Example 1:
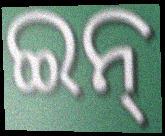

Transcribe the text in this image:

ଇନ୍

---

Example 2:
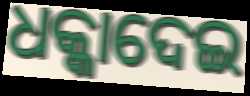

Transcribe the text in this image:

ଧକ୍କାଦେଇ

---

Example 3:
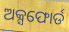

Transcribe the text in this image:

ଅକ୍ସଫୋର୍ଡ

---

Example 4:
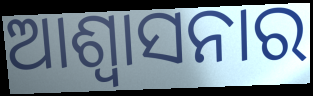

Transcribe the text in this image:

ଆଶ୍ୱାସନାର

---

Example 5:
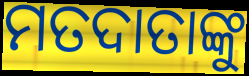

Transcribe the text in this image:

ମତଦାତାଙ୍କୁ